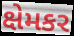
ક્ષેમકર